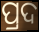
ପ୍ରଦ